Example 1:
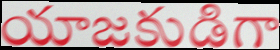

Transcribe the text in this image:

యాజకుడిగా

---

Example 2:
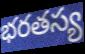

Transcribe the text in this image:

భరతస్య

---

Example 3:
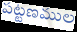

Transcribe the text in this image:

పట్టణముల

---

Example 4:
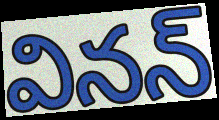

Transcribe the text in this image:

వినన్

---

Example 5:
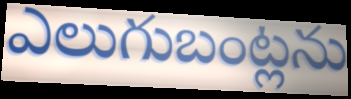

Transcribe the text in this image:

ఎలుగుబంట్లను